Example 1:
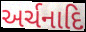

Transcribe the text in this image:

અર્ચનાદિ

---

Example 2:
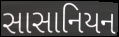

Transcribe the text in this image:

સાસાનિયન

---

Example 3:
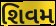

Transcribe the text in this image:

શિવમ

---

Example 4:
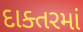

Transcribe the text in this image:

દાક્તરમાં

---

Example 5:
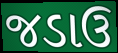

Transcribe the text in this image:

જડાઉ